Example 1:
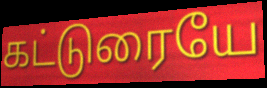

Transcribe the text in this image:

கட்டுரையே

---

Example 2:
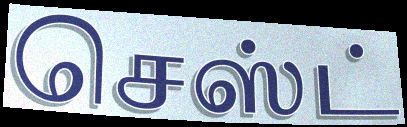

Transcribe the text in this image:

செஸ்ட்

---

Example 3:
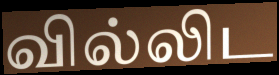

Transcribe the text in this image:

வில்லிட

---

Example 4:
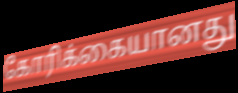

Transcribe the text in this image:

கோரிக்கையானது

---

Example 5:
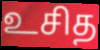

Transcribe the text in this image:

உசித